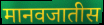
मानवजातीस